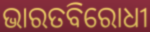
ଭାରତବିରୋଧୀ